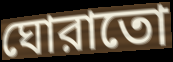
ঘোরাতো